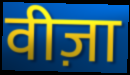
वीज़ा